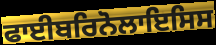
ਫਾਈਬਰਿਨੋਲਾਇਸਿਸ